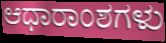
ಆಧಾರಾಂಶಗಳು